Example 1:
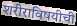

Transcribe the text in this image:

शरीराविषयीची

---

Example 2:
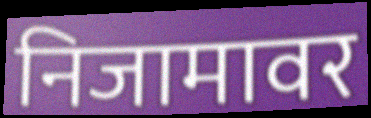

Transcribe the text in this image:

निजामावर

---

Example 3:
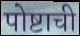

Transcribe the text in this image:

पोष्टाची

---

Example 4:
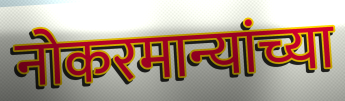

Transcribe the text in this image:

नोकरमान्यांच्या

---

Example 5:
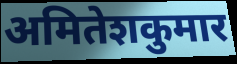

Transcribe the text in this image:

अमितेशकुमार